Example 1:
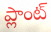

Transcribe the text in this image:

ప్లాంట్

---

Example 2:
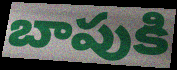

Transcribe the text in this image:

బాపుకి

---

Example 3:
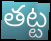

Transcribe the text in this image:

తట్ట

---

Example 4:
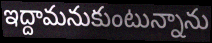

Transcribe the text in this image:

ఇద్దామనుకుంటున్నాను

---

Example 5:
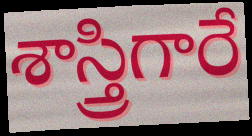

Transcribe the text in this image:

శాస్త్రిగారే